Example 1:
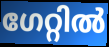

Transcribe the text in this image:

ഗേറ്റിൽ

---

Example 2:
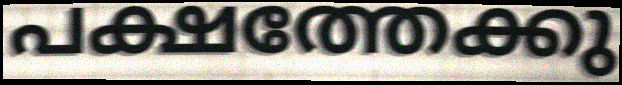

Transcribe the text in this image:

പക്ഷത്തേക്കു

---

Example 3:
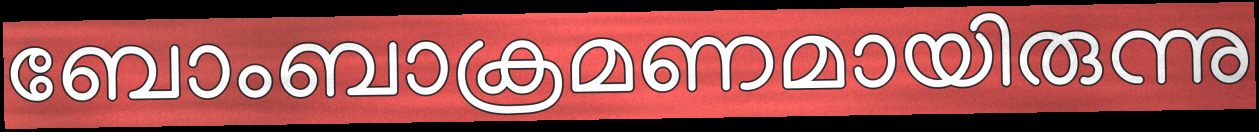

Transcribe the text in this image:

ബോംബാക്രമണമായിരുന്നു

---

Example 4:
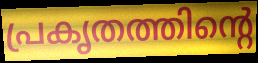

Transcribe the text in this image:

പ്രകൃതത്തിന്റെ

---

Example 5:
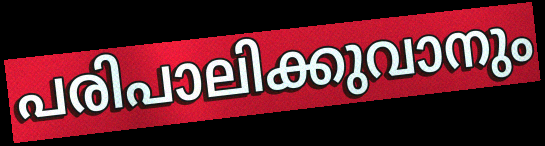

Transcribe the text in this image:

പരിപാലിക്കുവാനും